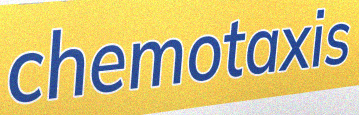
chemotaxis